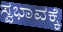
ಸ್ವಭಾವಕ್ಕೆ